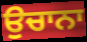
ਉਚਾਨਾ